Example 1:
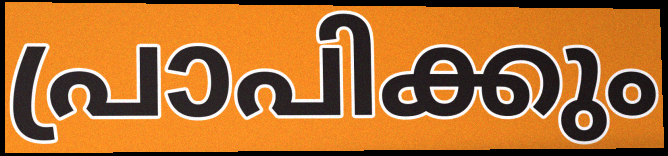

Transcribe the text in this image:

പ്രാപിക്കും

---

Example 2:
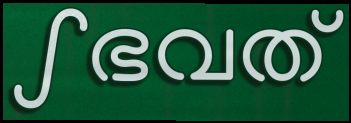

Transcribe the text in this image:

ഽഭവത്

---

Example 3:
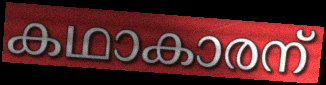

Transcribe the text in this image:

കഥാകാരന്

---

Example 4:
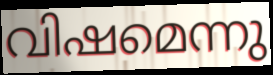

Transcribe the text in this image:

വിഷമെന്നു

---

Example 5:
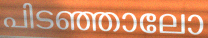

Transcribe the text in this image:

പിടഞ്ഞാലോ